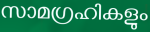
സാമഗ്രഹികളും